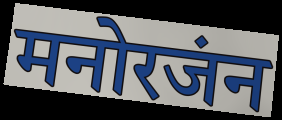
मनोरजंन